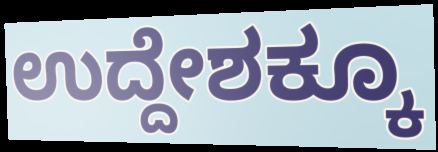
ಉದ್ದೇಶಕ್ಕೂ